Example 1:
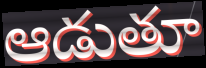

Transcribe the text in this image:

ఆడుతూ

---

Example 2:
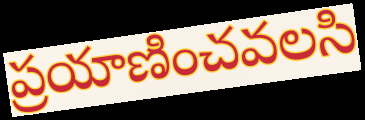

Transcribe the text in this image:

ప్రయాణించవలసి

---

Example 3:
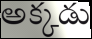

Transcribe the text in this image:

అక్కడు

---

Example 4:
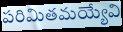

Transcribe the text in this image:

పరిమితమయ్యేవి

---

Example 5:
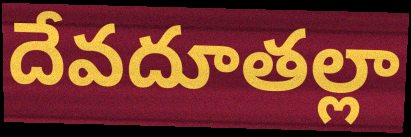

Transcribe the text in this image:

దేవదూతల్లా